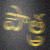
పౌత్త్ర